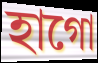
হাগো